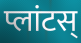
प्लांटस्